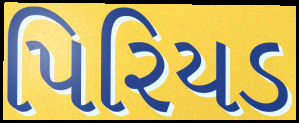
પિરિયડ